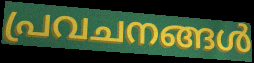
പ്രവചനങ്ങൾ